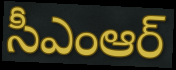
సీఎంఆర్